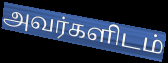
அவர்களிடம்